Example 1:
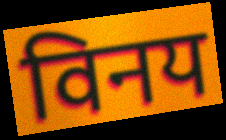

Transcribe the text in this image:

विनय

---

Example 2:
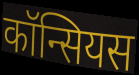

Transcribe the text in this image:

कॉन्सियस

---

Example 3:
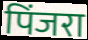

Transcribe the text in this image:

पिंजरा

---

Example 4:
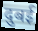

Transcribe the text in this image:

दुबई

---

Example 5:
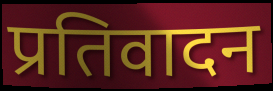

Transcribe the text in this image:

प्रतिवादन